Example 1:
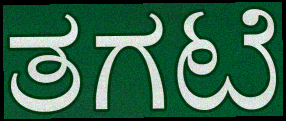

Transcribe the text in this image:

ತಗಟೆ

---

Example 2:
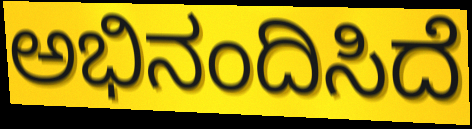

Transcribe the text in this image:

ಅಭಿನಂದಿಸಿದೆ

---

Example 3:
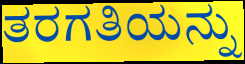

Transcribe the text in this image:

ತರಗತಿಯನ್ನು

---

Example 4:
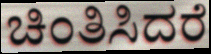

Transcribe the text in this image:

ಚಿಂತಿಸಿದರೆ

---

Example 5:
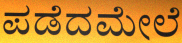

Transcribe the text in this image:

ಪಡೆದಮೇಲೆ